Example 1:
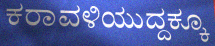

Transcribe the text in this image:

ಕರಾವಳಿಯುದ್ದಕ್ಕೂ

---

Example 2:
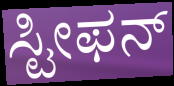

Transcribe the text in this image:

ಸ್ಟೀಫನ್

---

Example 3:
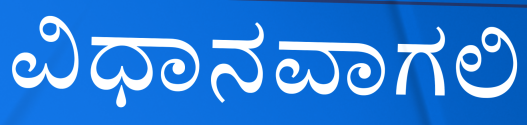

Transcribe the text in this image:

ವಿಧಾನವಾಗಲಿ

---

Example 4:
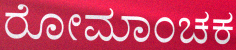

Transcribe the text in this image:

ರೋಮಾಂಚಕ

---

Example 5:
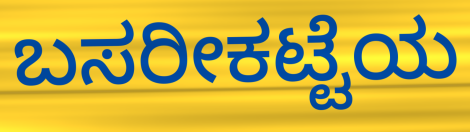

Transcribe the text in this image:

ಬಸರೀಕಟ್ಟೆಯ